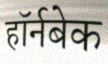
हॉर्नबेक